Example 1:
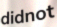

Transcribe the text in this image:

didnot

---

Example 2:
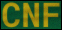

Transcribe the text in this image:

CNF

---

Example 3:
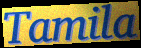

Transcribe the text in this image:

Tamila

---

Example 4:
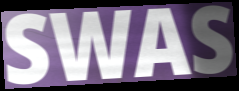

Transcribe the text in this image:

SWAS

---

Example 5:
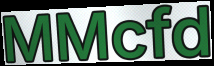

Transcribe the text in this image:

MMcfd